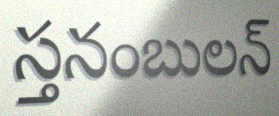
స్తనంబులన్